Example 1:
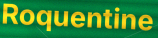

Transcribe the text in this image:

Roquentine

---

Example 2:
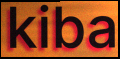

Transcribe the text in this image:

kiba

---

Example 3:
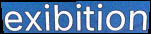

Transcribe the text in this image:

exibition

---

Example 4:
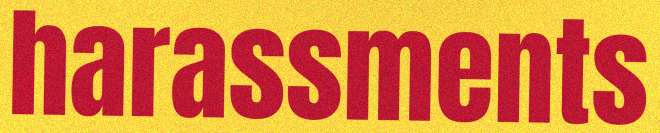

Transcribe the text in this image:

harassments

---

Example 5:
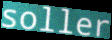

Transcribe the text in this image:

soller